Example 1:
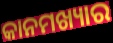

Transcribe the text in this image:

କାନମଖ୍ୟାର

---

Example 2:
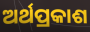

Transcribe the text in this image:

ଅର୍ଥପ୍ରକାଶ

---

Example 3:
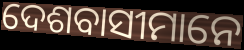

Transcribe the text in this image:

ଦେଶବାସୀମାନେ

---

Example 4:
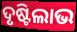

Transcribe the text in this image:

ଦୃଷ୍ଟିଲାଭ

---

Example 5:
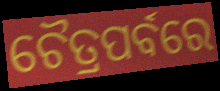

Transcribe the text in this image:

ଚୈତ୍ରପର୍ବରେ